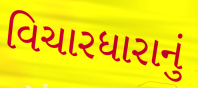
વિચારધારાનું